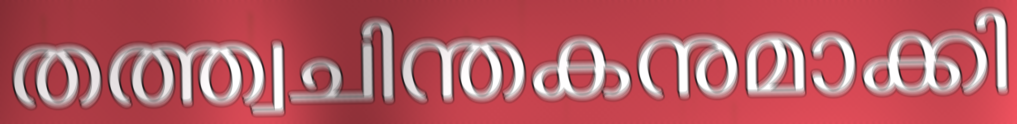
തത്ത്വചിന്തകനുമാക്കി